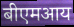
बीएमआय